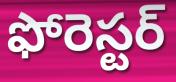
ఫోరెస్టర్